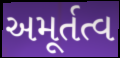
અમૂર્તત્વ